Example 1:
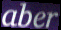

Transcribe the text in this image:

aber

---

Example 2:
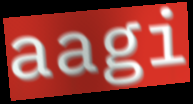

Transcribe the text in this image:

aagi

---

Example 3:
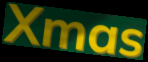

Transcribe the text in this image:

Xmas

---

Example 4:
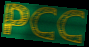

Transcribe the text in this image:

PCC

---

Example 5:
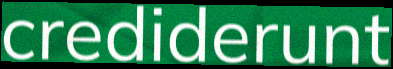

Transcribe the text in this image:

crediderunt